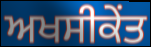
ਅਖਸੀਕੇਂਤ